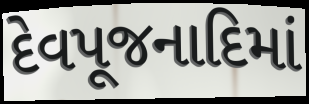
દેવપૂજનાદિમાં